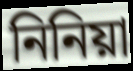
নিনিয়া